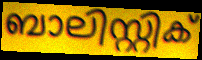
ബാലിസ്റ്റിക്